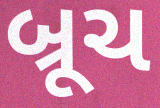
બ્રૂચ